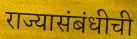
राज्यासंबंधीची